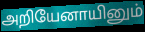
அறியேனாயினும்